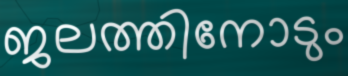
ജലത്തിനോടും